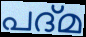
പദ്മ